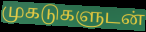
முகடுகளுடன்